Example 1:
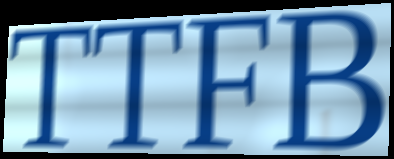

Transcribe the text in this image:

TTFB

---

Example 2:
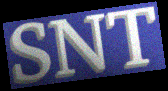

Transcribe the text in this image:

SNT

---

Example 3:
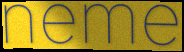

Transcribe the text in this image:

neme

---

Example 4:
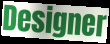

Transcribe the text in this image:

Designer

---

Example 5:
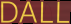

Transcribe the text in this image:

DALL